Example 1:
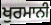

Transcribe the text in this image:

ਖੁਰਮਾਨੀ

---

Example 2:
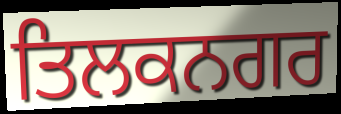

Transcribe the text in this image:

ਤਿਲਕਨਗਰ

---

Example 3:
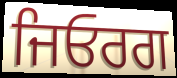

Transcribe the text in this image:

ਜਿਓਰਗ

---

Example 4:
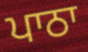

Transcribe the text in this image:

ਪਾਠਾ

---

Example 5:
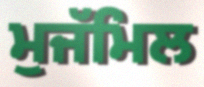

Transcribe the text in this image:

ਮੁਜੱਮਿਲ